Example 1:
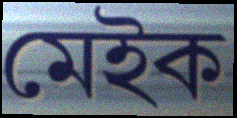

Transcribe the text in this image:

মেইক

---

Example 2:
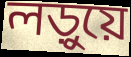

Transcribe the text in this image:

লড়ুয়ে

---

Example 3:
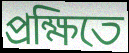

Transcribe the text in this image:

প্রক্ষিতে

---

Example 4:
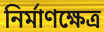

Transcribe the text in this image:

নির্মাণক্ষেত্র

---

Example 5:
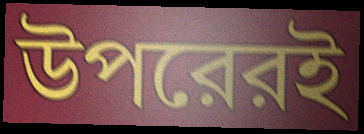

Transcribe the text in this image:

উপরেরই